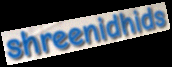
shreenidhids